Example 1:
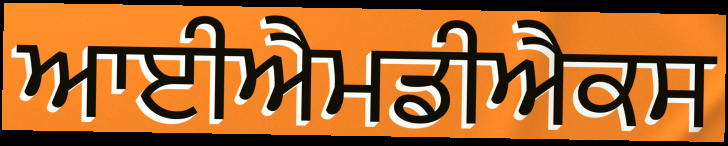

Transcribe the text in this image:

ਆਈਐਮਡੀਐਕਸ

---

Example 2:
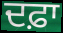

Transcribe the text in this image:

ਦਫ਼ਾ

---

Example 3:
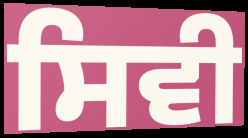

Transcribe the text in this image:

ਸਿਵੀ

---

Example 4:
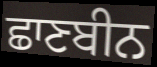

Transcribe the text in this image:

ਛਾਣਬੀਨ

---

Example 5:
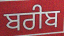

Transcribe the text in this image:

ਬਰੀਬ